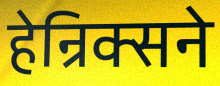
हेन्रिक्सने